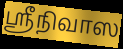
ஸ்ரீநிவாஸ